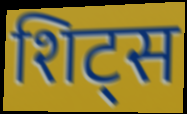
शिट्स